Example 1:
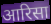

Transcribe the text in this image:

आरिसा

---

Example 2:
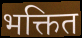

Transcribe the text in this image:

भक्तित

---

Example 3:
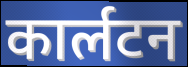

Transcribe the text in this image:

कार्लटन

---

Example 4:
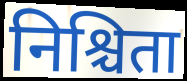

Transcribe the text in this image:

निश्चिता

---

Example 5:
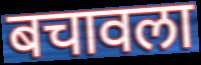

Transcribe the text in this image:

बचावला